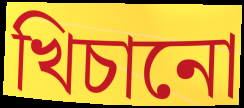
খিচানো